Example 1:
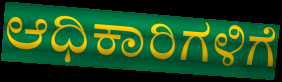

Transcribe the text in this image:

ಆಧಿಕಾರಿಗಳಿಗೆ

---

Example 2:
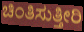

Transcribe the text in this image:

ಚಿಂತಿಸುತ್ತೀರಿ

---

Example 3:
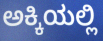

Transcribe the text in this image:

ಅಕ್ಕಿಯಲ್ಲಿ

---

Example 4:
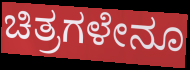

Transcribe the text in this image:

ಚಿತ್ರಗಳೇನೂ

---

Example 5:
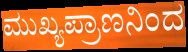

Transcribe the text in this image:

ಮುಖ್ಯಪ್ರಾಣನಿಂದ